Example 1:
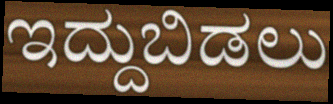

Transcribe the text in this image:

ಇದ್ದುಬಿಡಲು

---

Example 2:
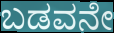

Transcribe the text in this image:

ಬಡವನೇ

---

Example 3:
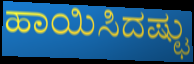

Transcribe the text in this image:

ಹಾಯಿಸಿದಷ್ಟು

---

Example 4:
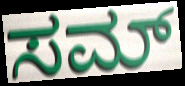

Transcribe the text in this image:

ಸಮ್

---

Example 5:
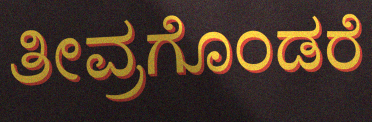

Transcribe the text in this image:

ತೀವ್ರಗೊಂಡರೆ